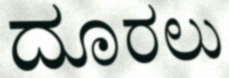
ದೂರಲು